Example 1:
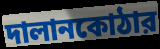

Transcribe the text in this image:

দালানকোঠার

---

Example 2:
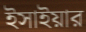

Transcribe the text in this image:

ইসাইয়ার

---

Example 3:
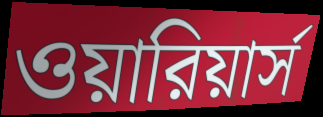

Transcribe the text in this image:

ওয়ারিয়ার্স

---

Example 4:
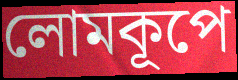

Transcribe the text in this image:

লোমকূপে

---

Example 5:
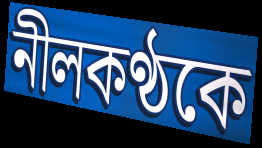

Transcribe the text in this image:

নীলকণ্ঠকে